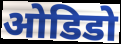
ओडिडो